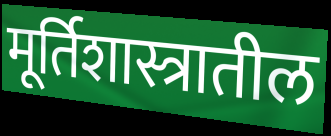
मूर्तिशास्त्रातील